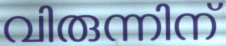
വിരുന്നിന്